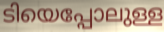
ടിയെപ്പോലുള്ള